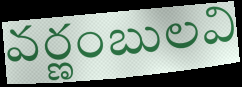
వర్ణంబులవి